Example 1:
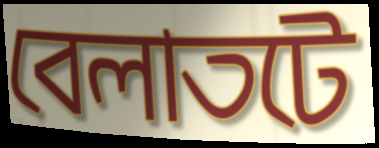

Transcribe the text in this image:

বেলাতটে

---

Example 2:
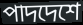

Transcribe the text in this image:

পাদদেশে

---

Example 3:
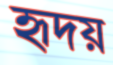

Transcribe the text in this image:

হৃদয়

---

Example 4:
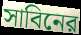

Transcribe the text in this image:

সাবিনের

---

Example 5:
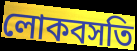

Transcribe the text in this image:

লোকবসতি